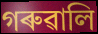
গৰুৱালি